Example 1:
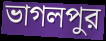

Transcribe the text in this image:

ভাগলপুর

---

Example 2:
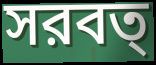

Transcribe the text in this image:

সরবত্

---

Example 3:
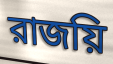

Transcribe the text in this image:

রাজয়ি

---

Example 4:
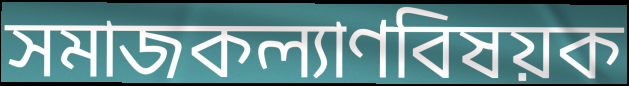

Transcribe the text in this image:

সমাজকল্যাণবিষয়ক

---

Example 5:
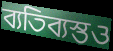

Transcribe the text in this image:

ব্যতিব্যস্তও